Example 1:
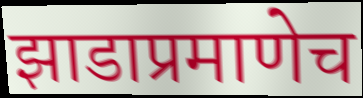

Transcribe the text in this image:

झाडाप्रमाणेच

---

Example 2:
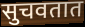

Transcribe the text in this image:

सुचवतात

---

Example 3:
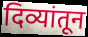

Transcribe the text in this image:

दिव्यांतून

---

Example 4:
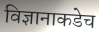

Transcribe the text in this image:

विज्ञानाकडेच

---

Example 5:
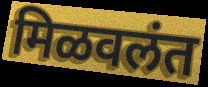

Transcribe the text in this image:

मिळवलंत